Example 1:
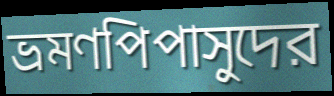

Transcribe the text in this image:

ভ্রমণপিপাসুদের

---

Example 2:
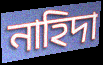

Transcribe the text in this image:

নাহিদা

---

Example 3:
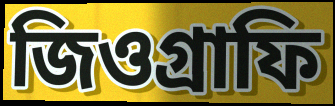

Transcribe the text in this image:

জিওগ্রাফি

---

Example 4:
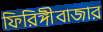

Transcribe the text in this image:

ফিরিঙ্গীবাজার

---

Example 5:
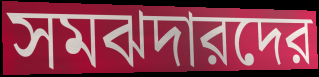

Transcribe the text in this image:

সমঝদারদের